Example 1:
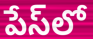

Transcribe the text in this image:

పేస్‌లో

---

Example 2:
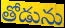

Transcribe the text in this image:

తోడును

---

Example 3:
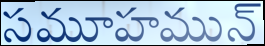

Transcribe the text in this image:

సమూహమున్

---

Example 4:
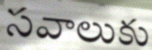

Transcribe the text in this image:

సవాలుకు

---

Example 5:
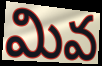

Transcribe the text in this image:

మివ